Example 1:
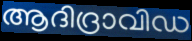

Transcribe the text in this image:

ആദിദ്രാവിഡ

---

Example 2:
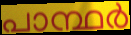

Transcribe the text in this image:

പാന്ഥർ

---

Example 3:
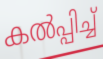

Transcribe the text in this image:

കൽപ്പിച്ച്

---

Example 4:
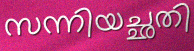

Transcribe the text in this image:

സന്നിയച്ഛതി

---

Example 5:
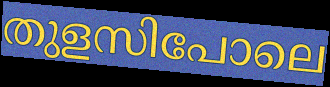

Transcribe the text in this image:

തുളസിപോലെ